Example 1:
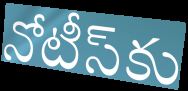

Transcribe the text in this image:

నోటీస్‌కు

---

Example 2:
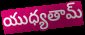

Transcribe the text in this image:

యుధ్యతామ్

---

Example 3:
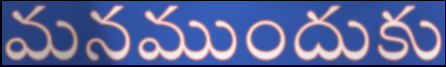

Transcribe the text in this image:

మనముందుకు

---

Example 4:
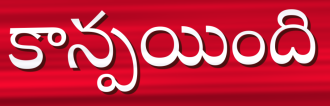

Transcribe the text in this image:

కాన్పయింది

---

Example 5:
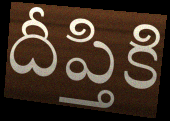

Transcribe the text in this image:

దీప్తికి